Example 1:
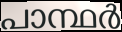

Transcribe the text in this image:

പാന്ഥർ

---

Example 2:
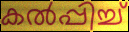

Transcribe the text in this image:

കൽപ്പിച്ച്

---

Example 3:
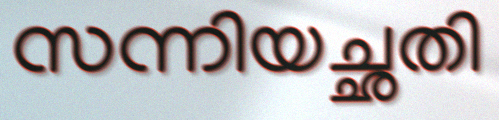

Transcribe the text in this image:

സന്നിയച്ഛതി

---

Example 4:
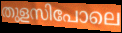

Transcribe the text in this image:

തുളസിപോലെ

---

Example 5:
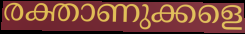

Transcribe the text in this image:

രക്താണുക്കളെ